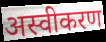
अस्वीकरण